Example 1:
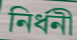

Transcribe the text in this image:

নির্ধনী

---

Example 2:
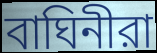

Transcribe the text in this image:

বাঘিনীরা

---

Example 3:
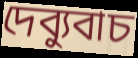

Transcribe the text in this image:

দেব্যুবাচ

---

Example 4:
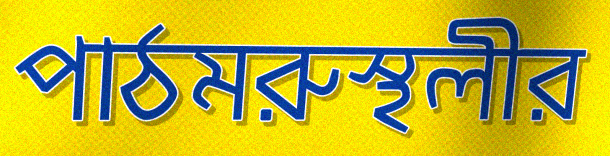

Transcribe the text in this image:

পাঠমরুস্থলীর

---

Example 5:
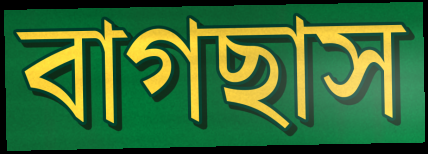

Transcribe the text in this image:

বাগছাস